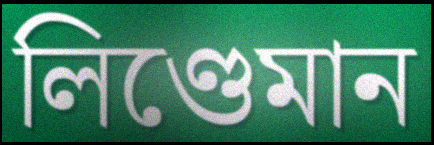
লিণ্ডেমান